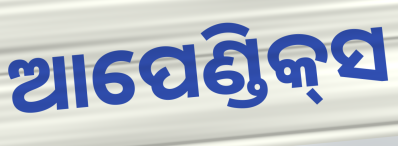
ଆପେଣ୍ଡିକ୍‌ସ